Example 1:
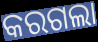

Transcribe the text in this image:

କରଗଲା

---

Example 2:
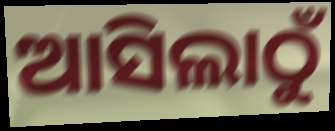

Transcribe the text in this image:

ଆସିଲାଠୁଁ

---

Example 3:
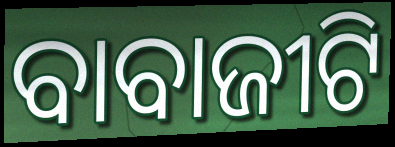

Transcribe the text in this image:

ବାବାଜୀଟି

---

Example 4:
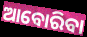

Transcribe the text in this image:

ଆବୋରିବା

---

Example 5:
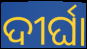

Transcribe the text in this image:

ଦୀର୍ଘା